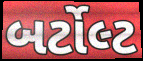
બર્ટોલ્ટ